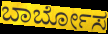
ಬಾರ್ಬೋಸ